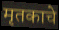
मृतकाचे